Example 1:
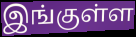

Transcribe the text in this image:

இங்குள்ள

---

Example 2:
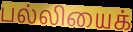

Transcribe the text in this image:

பல்லியைக்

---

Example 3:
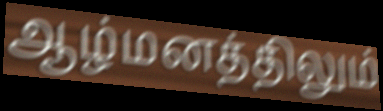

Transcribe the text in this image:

ஆழ்மனத்திலும்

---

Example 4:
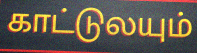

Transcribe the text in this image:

காட்டுலயும்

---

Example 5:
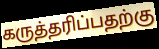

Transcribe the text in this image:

கருத்தரிப்பதற்கு